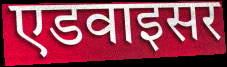
एडवाइसर